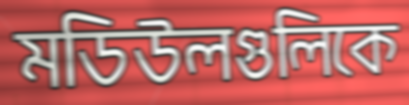
মডিউলগুলিকে